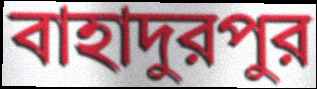
বাহাদুরপুর